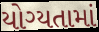
યોગ્યતામાં